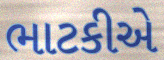
ભાટકીએ